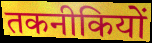
तकनीकियों